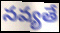
నవ్యతే